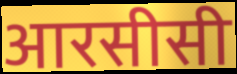
आरसीसी